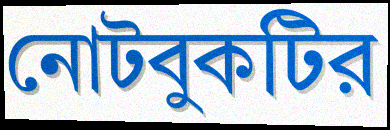
নোটবুকটির